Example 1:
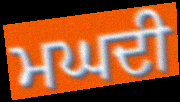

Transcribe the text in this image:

ਮਘਦੀ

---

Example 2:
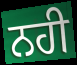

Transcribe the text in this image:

ਨਹੀ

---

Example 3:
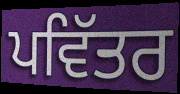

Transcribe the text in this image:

ਪਵਿੱਤਰ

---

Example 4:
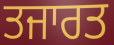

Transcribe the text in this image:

ਤਜਾਰਤ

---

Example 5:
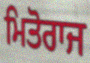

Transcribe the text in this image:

ਮਿਤੋਰਾਜ